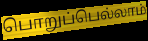
பொறுப்பெல்லாம்